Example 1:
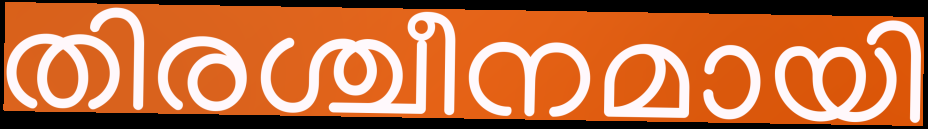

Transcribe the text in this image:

തിരശ്ചീനമായി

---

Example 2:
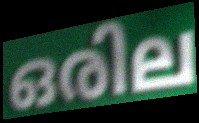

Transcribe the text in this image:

ഒരില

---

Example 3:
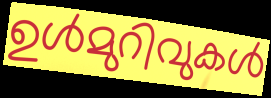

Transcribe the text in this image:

ഉൾമുറിവുകൾ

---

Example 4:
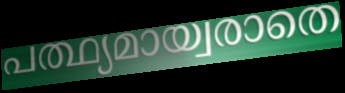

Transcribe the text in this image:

പത്ഥ്യമായ്വരാതെ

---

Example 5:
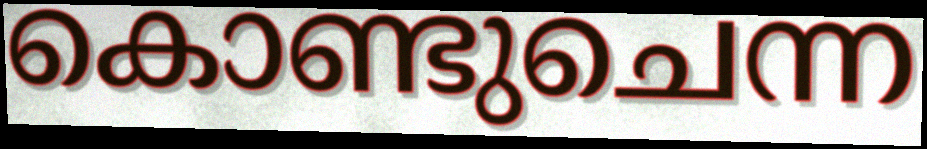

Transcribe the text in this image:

കൊണ്ടുചെന്ന